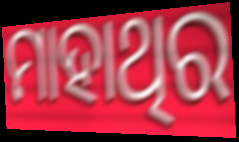
ମାହାଥିର